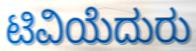
ಟಿವಿಯೆದುರು